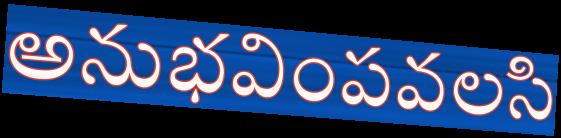
అనుభవింపవలసి